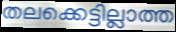
തലക്കെട്ടില്ലാത്ത